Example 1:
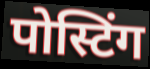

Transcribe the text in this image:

पोस्टिंग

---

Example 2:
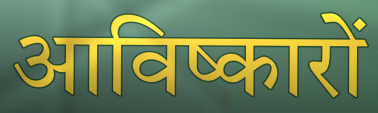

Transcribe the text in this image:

आविष्कारों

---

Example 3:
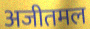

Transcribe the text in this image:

अजीतमल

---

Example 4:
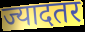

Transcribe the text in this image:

ज्यादतर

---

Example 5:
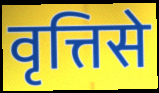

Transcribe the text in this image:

वृत्तिसे